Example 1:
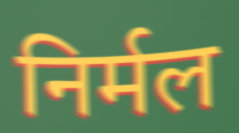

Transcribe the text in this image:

निर्मल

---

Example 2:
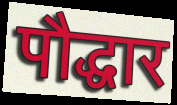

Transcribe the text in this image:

पौद्धार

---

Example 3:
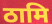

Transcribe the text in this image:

ठामि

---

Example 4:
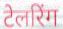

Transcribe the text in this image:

टेलरिंग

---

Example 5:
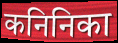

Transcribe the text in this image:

कनिनिका